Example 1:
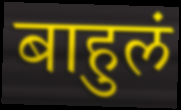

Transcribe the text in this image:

बाहुलं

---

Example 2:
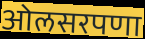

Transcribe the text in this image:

ओलसरपणा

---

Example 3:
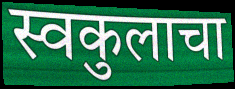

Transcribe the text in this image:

स्वकुलाचा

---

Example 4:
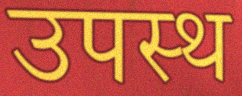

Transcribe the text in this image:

उपस्थ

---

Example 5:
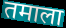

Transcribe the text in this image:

तमाला